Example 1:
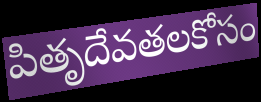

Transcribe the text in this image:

పితృదేవతలకోసం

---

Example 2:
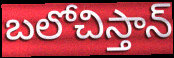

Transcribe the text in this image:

బలోచిస్తాన్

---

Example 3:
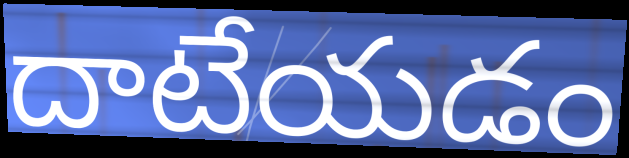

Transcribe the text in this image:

దాటేయడం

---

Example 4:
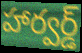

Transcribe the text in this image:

హార్వర్డ్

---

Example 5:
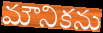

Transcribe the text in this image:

మౌనికను